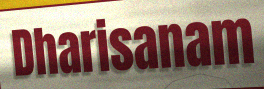
Dharisanam